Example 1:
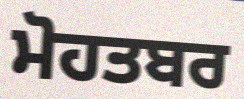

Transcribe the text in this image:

ਮੋਹਤਬਰ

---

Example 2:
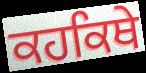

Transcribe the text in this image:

ਕਹਕਿਥੇ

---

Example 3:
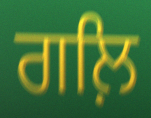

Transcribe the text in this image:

ਗਲ਼ਿ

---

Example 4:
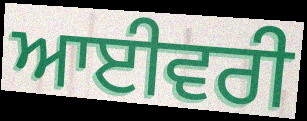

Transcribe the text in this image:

ਆਈਵਰੀ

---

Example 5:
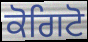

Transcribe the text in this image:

ਕੋਗਿਟੋ